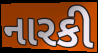
નારકી